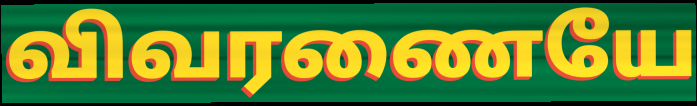
விவரணையே